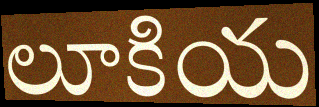
లూకియ